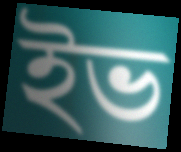
ইভ